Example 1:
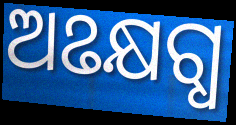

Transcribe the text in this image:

ଅଌକ୍ଷଗ୍ଧ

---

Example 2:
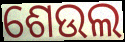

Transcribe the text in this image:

ଶେଉଲ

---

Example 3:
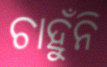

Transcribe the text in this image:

ଚାହୁଁନି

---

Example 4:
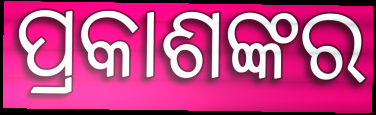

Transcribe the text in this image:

ପ୍ରକାଶଙ୍କର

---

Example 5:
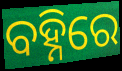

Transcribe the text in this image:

ବହ୍ନିରେ